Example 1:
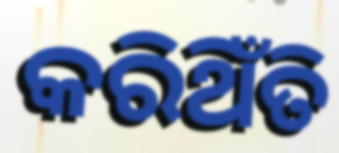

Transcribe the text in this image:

କରିଥିଁତି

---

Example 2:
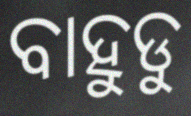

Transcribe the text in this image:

ବାହୁଡୁ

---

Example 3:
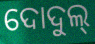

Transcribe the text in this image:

ଦୋଦୁଲ୍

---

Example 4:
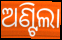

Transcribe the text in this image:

ଅଣ୍ଟିଲା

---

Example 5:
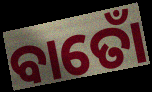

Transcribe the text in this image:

ବାତୋଁ